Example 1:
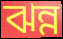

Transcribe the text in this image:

ঝন্ন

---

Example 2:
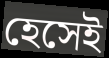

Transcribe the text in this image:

হেসেই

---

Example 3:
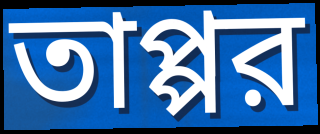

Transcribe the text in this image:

তাপ্পর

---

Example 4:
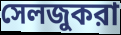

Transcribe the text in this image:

সেলজুকরা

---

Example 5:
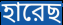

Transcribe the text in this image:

হারেছ